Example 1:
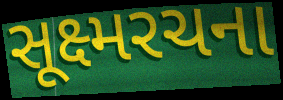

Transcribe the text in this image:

સૂક્ષ્મરચના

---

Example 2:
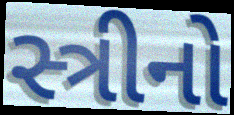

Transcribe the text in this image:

સ્ત્રીનો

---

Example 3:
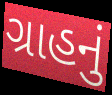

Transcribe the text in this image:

ગ્રાહનું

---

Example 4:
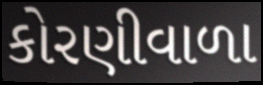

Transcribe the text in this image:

કોરણીવાળા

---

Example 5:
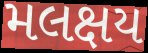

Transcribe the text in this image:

મલક્ષય